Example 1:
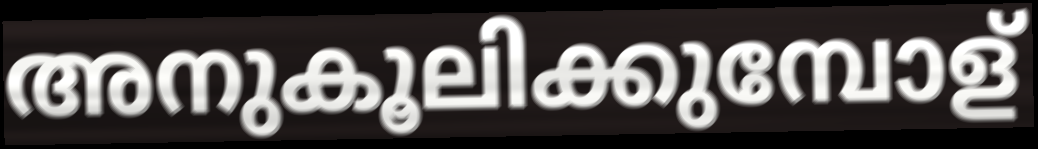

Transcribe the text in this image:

അനുകൂലിക്കുമ്പോള്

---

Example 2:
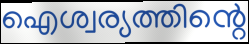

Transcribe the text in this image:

ഐശ്വര്യത്തിന്റെ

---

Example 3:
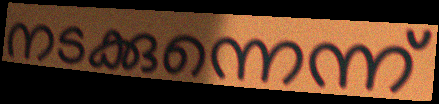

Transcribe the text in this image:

നടക്കുന്നെന്ന്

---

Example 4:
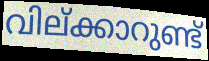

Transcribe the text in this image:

വില്ക്കാറുണ്ട്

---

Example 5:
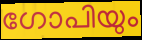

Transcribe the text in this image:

ഗോപിയും